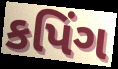
કપિંગ